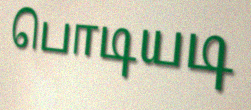
பொடியடி